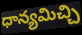
ధాన్యమిచ్చి